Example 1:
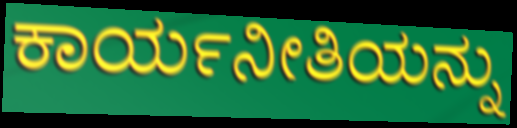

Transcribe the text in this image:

ಕಾರ್ಯನೀತಿಯನ್ನು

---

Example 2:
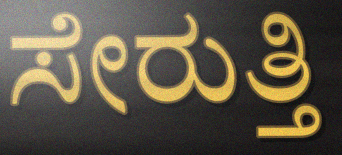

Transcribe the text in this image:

ಸೇರುತ್ತಿ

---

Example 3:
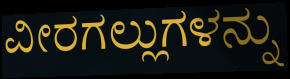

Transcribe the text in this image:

ವೀರಗಲ್ಲುಗಳನ್ನು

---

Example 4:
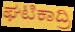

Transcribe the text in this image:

ಘಟಿಕಾದ್ರಿ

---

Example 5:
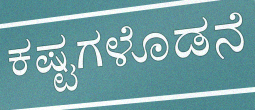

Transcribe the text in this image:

ಕಷ್ಟಗಳೊಡನೆ